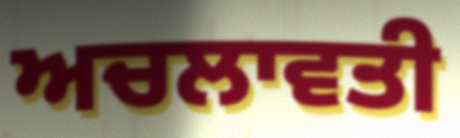
ਅਚਲਾਵਤੀ